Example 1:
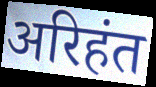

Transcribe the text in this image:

अरिहंत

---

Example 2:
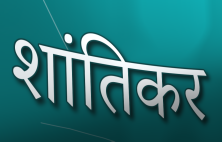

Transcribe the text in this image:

शांतिकर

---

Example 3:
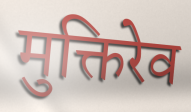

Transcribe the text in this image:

मुक्तिरेव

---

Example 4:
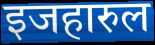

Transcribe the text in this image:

इजहारुल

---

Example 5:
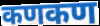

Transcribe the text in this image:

कणकण